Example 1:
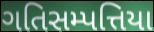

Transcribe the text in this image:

ગતિસમ્પત્તિયા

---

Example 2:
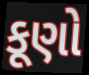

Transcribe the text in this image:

કૂણો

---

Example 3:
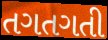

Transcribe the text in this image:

તગતગતી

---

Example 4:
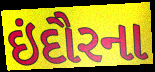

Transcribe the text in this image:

ઇંદૌરના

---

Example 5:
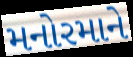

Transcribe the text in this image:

મનોરમાને